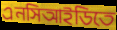
এনসিআইডিতে